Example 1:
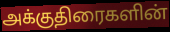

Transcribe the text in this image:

அக்குதிரைகளின்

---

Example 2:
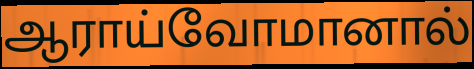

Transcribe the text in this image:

ஆராய்வோமானால்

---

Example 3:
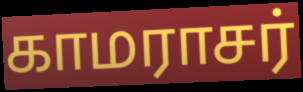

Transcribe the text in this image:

காமராசர்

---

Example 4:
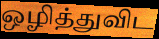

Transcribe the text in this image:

ஒழித்துவிட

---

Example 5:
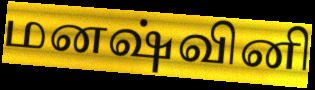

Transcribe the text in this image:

மனஷ்வினி